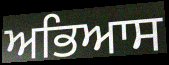
ਅਭਿਆਸ